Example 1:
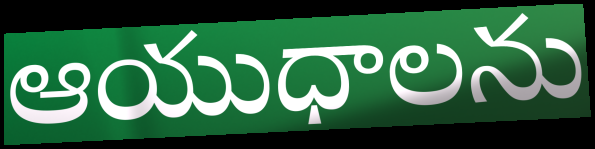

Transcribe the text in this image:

ఆయుధాలను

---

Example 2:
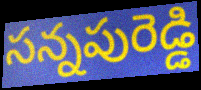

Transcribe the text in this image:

సన్నపురెడ్డి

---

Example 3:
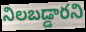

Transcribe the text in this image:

నిలబడ్డారని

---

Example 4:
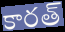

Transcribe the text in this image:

కారత్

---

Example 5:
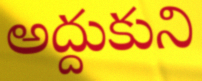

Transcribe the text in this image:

అద్దుకుని